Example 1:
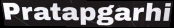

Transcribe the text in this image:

Pratapgarhi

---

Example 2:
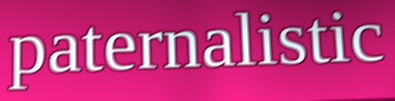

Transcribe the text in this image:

paternalistic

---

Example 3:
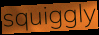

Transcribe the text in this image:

squiggly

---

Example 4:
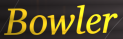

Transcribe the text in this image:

Bowler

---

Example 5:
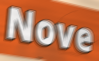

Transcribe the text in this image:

Nove